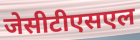
जेसीटीएसएल